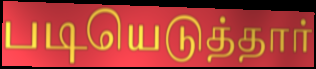
படியெடுத்தார்